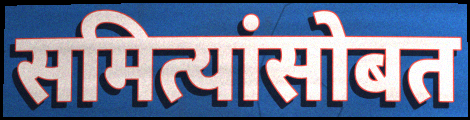
समित्यांसोबत